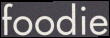
foodie